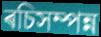
ৰচিসম্পন্ন